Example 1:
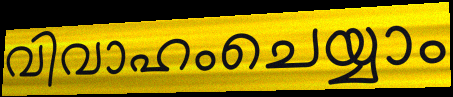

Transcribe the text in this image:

വിവാഹംചെയ്യാം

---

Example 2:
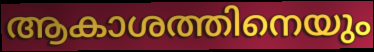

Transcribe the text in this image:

ആകാശത്തിനെയും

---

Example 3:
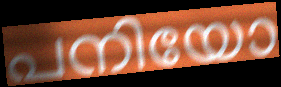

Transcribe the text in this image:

പനിയോ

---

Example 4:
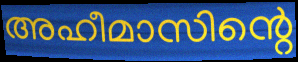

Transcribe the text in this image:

അഹീമാസിന്റെ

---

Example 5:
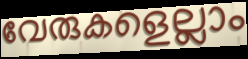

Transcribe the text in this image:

വേരുകളെല്ലാം